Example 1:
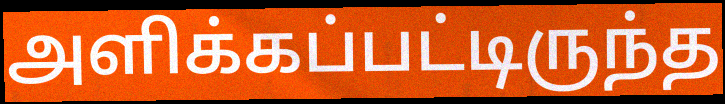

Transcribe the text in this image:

அளிக்கப்பட்டிருந்த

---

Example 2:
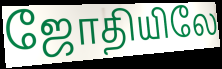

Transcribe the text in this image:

ஜோதியிலே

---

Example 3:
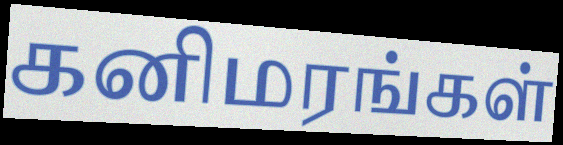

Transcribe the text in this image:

கனிமரங்கள்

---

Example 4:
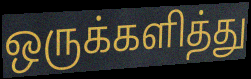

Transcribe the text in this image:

ஒருக்களித்து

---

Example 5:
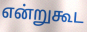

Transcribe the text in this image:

என்றுகூட